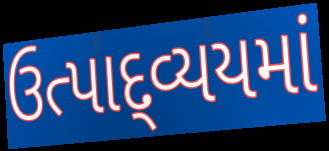
ઉત્પાદ્વ્યયમાં